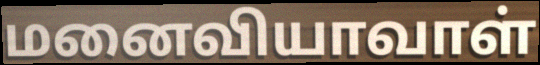
மனைவியாவாள்